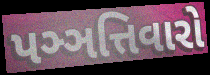
પઞ્ઞત્તિવારો